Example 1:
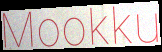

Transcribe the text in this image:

Mookku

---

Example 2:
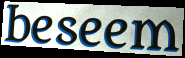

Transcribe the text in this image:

beseem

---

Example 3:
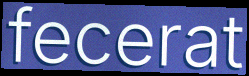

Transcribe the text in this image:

fecerat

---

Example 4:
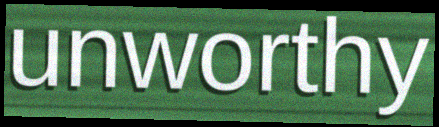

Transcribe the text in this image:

unworthy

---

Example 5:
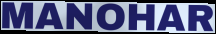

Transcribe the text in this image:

MANOHAR